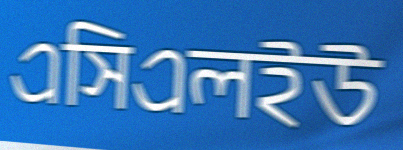
এসিএলইউ